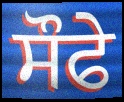
ਸੌਫੇ